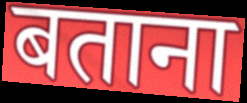
बताना